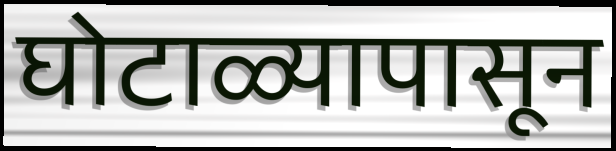
घोटाळ्यापासून